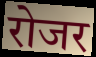
रोजर